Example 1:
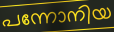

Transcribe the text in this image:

പന്നോനിയ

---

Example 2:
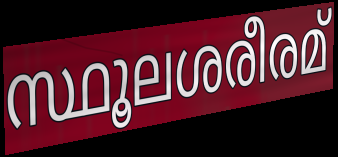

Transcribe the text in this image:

സ്ഥൂലശരീരമ്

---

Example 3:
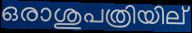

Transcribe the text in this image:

ഒരാശുപത്രിയില്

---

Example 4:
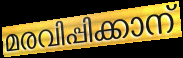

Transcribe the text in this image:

മരവിപ്പിക്കാന്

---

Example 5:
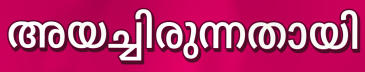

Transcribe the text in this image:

അയച്ചിരുന്നതായി